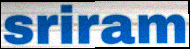
sriram